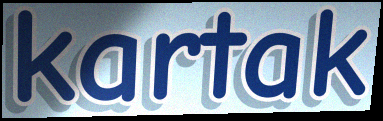
kartak